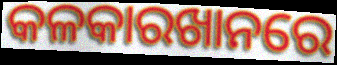
କଳକାରଖାନରେ